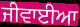
ਜੀਵਾਈਆ